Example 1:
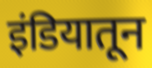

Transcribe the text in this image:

इंडियातून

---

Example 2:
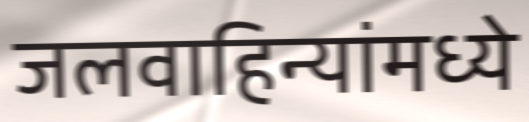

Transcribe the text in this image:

जलवाहिन्यांमध्ये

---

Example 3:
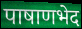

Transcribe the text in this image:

पाषाणभेद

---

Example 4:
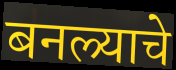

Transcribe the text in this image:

बनल्याचे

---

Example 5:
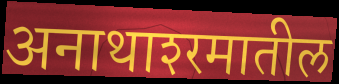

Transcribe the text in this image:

अनाथाश्रमातील